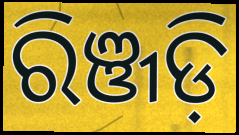
ରିଞ୍ଜଡ଼ି